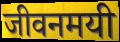
जीवनमयी